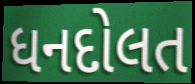
ધનદોલત